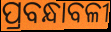
ପ୍ରବନ୍ଧାବଳୀ